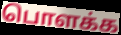
பொளக்க